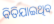
ବିତିଯାଇଥିବ